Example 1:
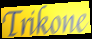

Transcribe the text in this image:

Trikone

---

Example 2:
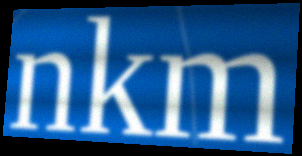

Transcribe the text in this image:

nkm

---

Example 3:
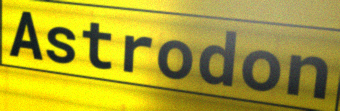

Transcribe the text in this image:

Astrodon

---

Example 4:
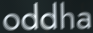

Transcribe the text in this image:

oddha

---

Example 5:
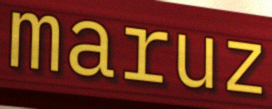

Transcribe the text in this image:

maruz